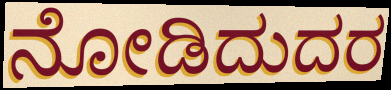
ನೋಡಿದುದರ